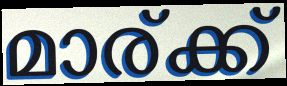
മാര്ക്ക്